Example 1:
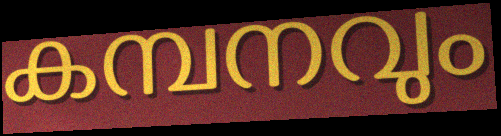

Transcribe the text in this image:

കമ്പനവും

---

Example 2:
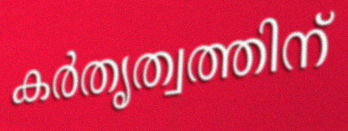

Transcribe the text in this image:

കർതൃത്വത്തിന്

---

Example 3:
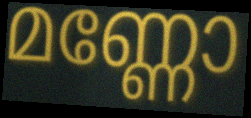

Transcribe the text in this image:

മണ്ണോ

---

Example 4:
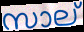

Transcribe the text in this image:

സാല്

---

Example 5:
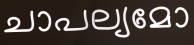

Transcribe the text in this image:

ചാപല്യമോ